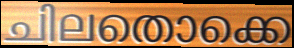
ചിലതൊക്കെ